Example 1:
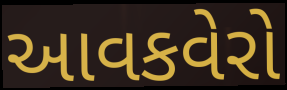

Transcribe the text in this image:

આવકવેરો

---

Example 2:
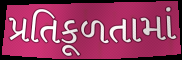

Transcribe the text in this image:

પ્રતિકૂળતામાં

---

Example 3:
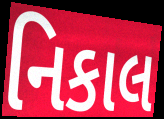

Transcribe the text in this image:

નિકાલ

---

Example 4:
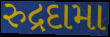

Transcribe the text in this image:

રુદ્રદામા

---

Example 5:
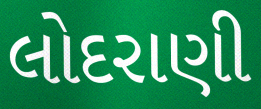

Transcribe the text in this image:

લોદરાણી